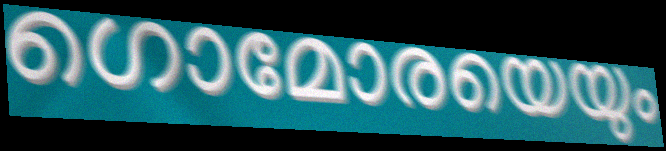
ഗൊമോരയെയും